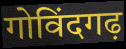
गोविंदगढ़